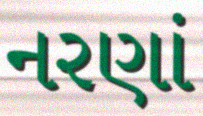
નરણાં